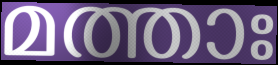
മത്താഃ